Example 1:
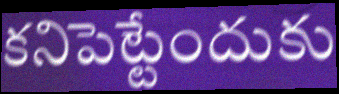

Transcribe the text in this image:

కనిపెట్టేందుకు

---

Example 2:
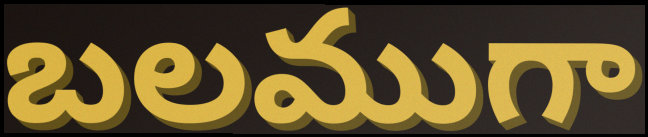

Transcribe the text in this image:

బలముగా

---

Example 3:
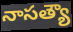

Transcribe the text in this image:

నాసత్యౌ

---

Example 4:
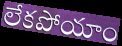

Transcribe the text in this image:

లేకపోయాం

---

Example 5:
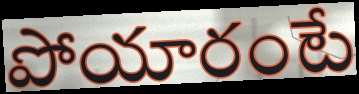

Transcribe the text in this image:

పోయారంటే